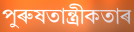
পুৰুষতান্ত্ৰীকতাৰ